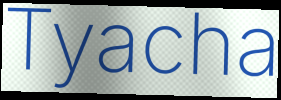
Tyacha